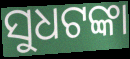
ସୁଧଟଙ୍କା